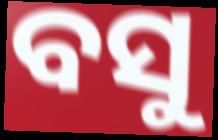
ବସୁ